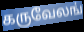
கருவேலங்